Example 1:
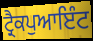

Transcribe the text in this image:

ਟ੍ਰੈਕਪੁਆਇੰਟ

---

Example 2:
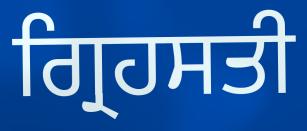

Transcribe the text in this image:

ਗ੍ਰਿਹਸਤੀ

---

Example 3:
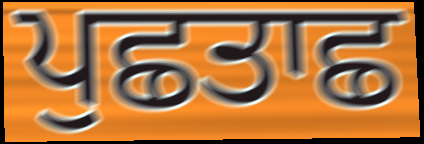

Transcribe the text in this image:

ਪੁਛਤਾਛ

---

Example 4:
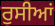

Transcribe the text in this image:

ਰੁਸੀਆਂ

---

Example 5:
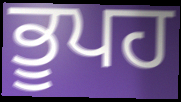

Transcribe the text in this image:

ਭੂਪਹ